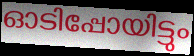
ഓടിപ്പോയിട്ടും